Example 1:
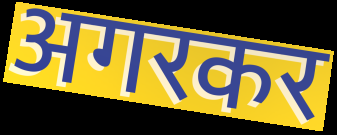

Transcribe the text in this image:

अगरकर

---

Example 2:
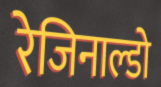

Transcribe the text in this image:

रेजिनाल्डो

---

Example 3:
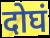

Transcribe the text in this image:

दोघं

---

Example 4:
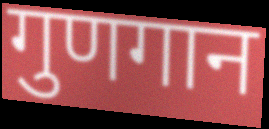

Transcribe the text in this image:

गुणगान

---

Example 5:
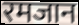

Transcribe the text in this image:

रमजान